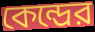
কেন্দ্রের